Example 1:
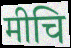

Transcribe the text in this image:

मीचि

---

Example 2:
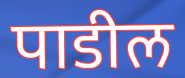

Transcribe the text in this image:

पाडील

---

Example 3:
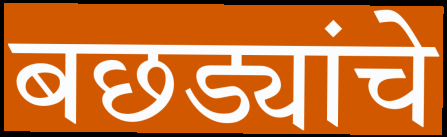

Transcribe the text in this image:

बछड्यांचे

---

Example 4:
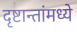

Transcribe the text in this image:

दृष्टान्तांमध्ये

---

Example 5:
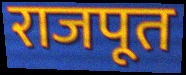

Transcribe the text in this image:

राजपूत